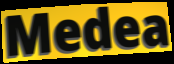
Medea